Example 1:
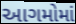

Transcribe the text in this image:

આગમોમાં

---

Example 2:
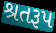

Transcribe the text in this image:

શ્રતરૂપ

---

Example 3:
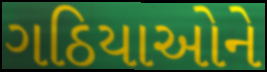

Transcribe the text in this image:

ગઠિયાઓને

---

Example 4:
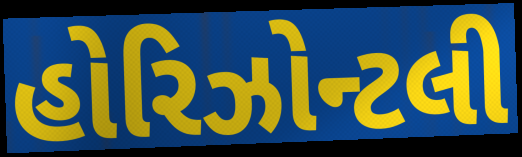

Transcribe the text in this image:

હોરિઝોન્ટલી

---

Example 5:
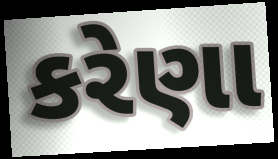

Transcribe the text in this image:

કરેણા